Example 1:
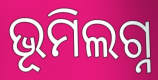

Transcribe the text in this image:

ଭୂମିଲଗ୍ନ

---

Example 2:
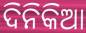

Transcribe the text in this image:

ଦିନିକିଆ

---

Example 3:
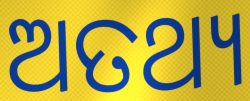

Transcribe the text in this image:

ଅତଥ୍ୟ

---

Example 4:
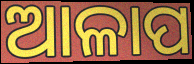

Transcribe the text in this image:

ଆଳାପ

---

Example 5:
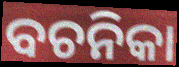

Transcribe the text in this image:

ବଚନିକା